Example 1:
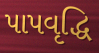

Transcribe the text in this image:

પાપવૃદ્ધિ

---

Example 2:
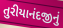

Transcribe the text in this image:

તુરીયાનંદજીનું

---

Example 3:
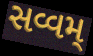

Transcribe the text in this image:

સવ્વમ્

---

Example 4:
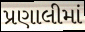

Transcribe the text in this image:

પ્રણાલીમાં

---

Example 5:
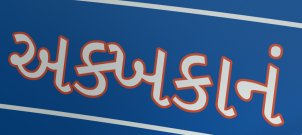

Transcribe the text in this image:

અક્ખકાનં